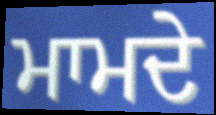
ਮਾਮਦੇ